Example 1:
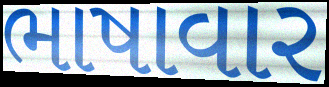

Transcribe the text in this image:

ભાષાવાર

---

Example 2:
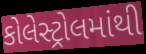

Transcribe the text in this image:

કોલેસ્ટ્રોલમાંથી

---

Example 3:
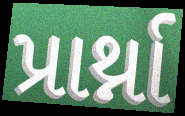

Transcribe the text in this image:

પ્રાર્થ્ના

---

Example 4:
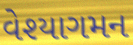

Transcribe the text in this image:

વેશ્યાગમન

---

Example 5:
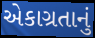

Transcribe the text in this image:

એકાગ્રતાનું